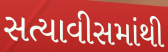
સત્યાવીસમાંથી